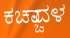
ಕಚ್ಚಾದಳ